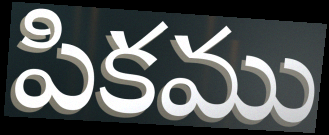
పికము